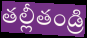
తల్లీతండ్రి